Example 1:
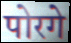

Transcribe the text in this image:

पोरगे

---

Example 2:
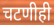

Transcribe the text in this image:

चटणीही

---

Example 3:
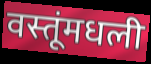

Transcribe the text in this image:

वस्तूंमधली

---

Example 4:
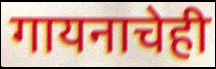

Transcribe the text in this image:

गायनाचेही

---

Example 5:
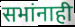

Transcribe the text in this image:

सभांनाही